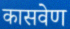
कासवेण